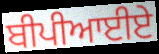
ਬੀਪੀਆਈਏ